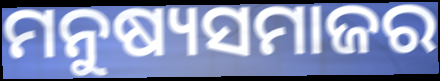
ମନୁଷ୍ୟସମାଜର